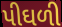
પીઘળી